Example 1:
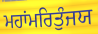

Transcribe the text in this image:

ਮਹਾਂਮਰਿਤੁੰਜਯ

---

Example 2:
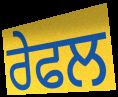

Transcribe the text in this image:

ਰੇਫਲ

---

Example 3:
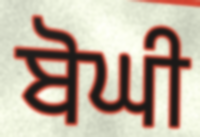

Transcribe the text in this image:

ਬੋਘੀ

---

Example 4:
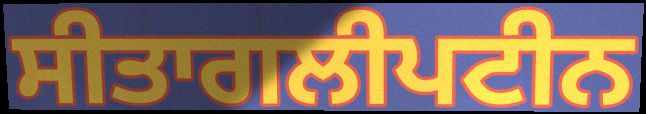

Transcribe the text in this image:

ਸੀਤਾਗਲੀਪਟੀਨ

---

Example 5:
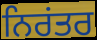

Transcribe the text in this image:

ਨਿਰਂਤਰ